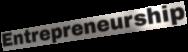
Entrepreneurship